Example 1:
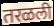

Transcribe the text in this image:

तरळली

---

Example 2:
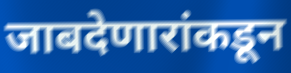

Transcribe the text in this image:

जाबदेणारांकडून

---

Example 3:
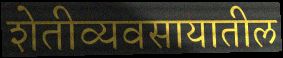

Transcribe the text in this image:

शेतीव्यवसायातील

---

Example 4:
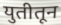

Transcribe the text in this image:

युतीतून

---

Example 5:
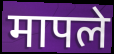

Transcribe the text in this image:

मापले